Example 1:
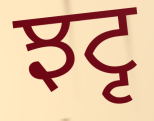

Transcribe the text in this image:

ਝਟ੍ਟ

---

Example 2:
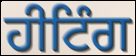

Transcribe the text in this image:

ਹੀਟਿੰਗ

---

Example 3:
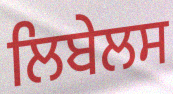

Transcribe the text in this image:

ਲਿਬੇਲਸ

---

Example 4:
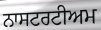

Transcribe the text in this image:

ਨਾਸਟਰਟੀਅਮ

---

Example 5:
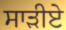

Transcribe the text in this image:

ਸਾੜੀਏ